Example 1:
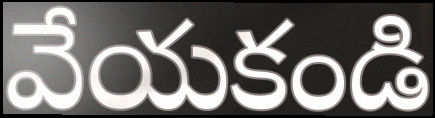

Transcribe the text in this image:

వేయకండి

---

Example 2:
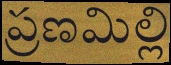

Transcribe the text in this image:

ప్రణమిల్లి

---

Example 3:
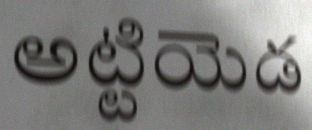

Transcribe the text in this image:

అట్టియెడ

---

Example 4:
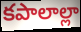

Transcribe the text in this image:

కపాలాల్లా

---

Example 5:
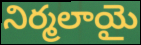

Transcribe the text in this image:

నిర్మలాయై